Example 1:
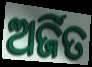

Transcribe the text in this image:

ଅର୍ଜିତ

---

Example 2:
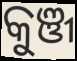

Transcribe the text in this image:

କୁଞ୍ଜ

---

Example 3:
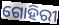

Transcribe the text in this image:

ଗୋହିରୀ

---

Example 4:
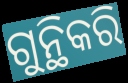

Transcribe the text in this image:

ଗୁନ୍ଥିକରି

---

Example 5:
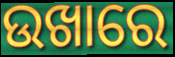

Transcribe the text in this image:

ଉଖାରେ